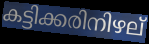
കട്ടിക്കരിനിഴല്